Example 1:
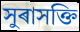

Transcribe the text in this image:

সুৰাসক্তি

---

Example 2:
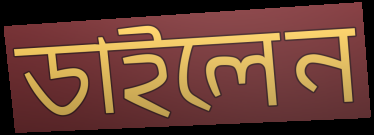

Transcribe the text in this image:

ডাইলেন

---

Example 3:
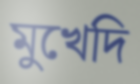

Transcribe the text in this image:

মুখেদি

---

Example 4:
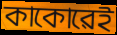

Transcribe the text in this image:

কাকোৱেই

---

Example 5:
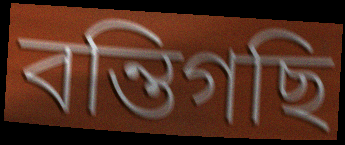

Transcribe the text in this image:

বন্তিগছি